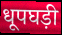
धूपघड़ी